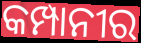
କମ୍ପାନୀର